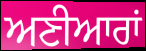
ਅਣੀਆਰਾਂ